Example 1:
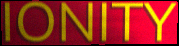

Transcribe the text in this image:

IONITY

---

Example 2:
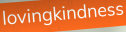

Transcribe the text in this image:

lovingkindness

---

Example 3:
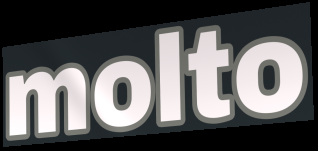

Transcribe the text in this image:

molto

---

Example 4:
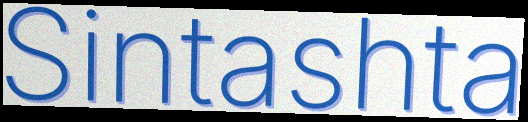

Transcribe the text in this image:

Sintashta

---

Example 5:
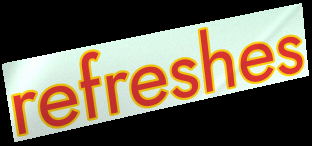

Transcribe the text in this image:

refreshes